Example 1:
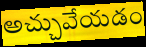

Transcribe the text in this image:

అచ్చువేయడం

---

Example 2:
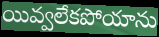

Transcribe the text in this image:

యివ్వలేకపోయాను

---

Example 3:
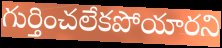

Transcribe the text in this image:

గుర్తించలేకపోయారని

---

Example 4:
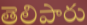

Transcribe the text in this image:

తెలిపారు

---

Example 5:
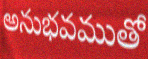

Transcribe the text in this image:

అనుభవముతో